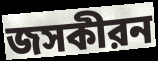
জসকীরন